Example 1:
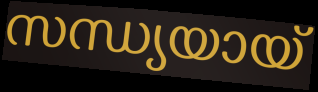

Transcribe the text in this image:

സന്ധ്യയായ്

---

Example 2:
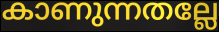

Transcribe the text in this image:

കാണുന്നതല്ലേ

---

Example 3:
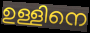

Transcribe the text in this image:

ഉള്ളിനെ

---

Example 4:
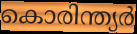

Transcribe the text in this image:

കൊരിന്ത്യർ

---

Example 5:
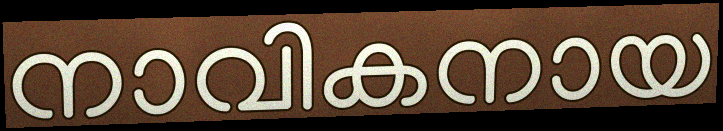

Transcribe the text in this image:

നാവികനായ